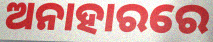
ଅନାହାରରେ